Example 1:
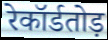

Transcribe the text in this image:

रेकॉर्डतोड़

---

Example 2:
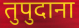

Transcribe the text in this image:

तुपुदाना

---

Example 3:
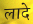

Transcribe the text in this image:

लादे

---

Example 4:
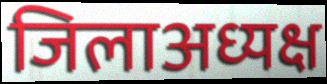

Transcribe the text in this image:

जिलाअध्यक्ष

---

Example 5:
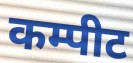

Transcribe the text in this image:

कम्पीट